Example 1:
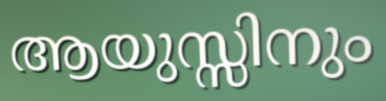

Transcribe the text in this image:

ആയുസ്സിനും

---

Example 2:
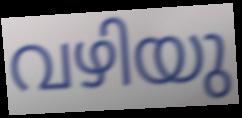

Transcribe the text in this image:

വഴിയു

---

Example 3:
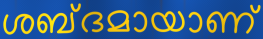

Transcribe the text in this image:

ശബ്ദമായാണ്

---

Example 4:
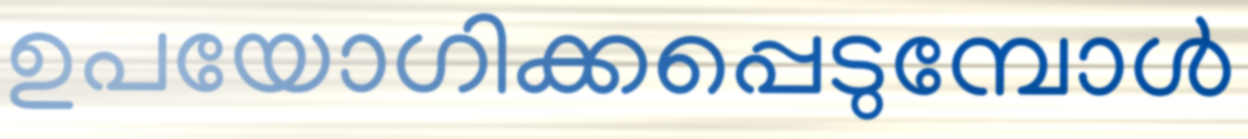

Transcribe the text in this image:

ഉപയോഗിക്കപ്പെടുമ്പോൾ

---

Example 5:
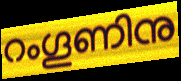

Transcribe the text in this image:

റംഗൂണിനു